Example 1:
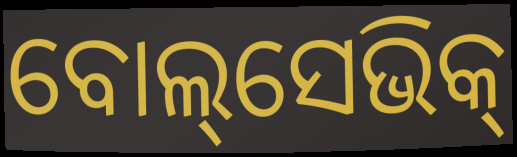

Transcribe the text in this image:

ବୋଲ୍‌ସେଭିକ୍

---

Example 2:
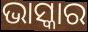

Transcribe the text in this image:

ଭାସ୍କାର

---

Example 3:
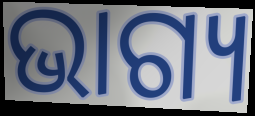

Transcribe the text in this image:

ଭାଗ୍ୟ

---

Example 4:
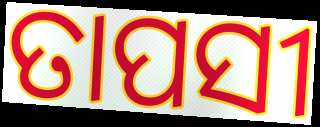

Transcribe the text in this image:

ତାପସୀ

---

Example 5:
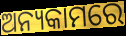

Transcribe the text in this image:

ଅନ୍ୟକାମରେ